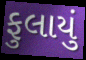
ફુલાયું